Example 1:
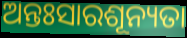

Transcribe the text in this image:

ଅନ୍ତଃସାରଶୂନ୍ୟତା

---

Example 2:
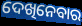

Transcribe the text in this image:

ଦେଖିନେବାର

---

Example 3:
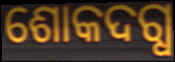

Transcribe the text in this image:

ଶୋକଦଗ୍ଧ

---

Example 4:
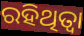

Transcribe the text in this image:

ରହିଥିତ୍ବା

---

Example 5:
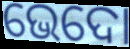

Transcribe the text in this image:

ଭେଦୋ